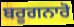
ਬਰੂਗਨਾਰੋ